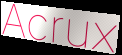
Acrux